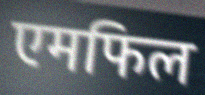
एमफिल